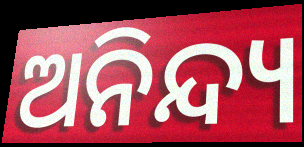
ଅନିନ୍ଦ୍ୟ